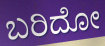
ಬರಿದೋ